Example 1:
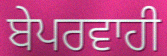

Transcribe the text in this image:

ਬੇਪਰਵਾਹੀ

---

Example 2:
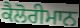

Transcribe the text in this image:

ਕੈਲੋਰੀਮਾਨ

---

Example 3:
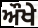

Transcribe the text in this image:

ਔਖੇ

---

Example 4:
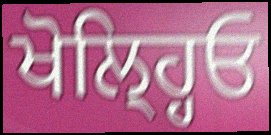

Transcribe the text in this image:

ਖੋਲ੍ਹ੍ਹਿਓ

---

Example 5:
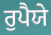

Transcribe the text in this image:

ਰੁਪੈਯੇ